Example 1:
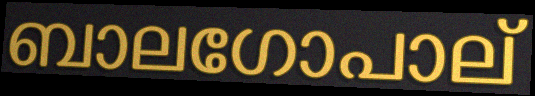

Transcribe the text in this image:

ബാലഗോപാല്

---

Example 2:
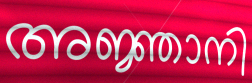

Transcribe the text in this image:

അജ്ഞാനി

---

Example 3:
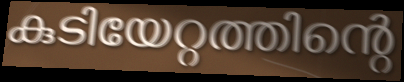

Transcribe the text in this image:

കുടിയേറ്റത്തിന്റെ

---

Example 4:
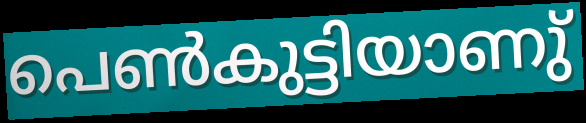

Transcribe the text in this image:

പെൺകുട്ടിയാണു്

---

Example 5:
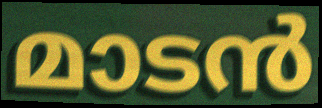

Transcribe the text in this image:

മാടൻ